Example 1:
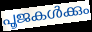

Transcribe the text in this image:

പൂജകൾക്കും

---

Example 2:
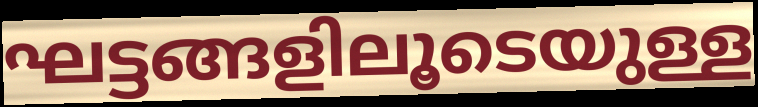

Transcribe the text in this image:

ഘട്ടങ്ങളിലൂടെയുള്ള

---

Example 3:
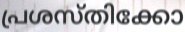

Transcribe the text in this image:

പ്രശസ്തിക്കോ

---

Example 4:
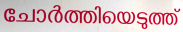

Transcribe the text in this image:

ചോർത്തിയെടുത്ത്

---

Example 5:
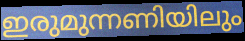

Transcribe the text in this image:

ഇരുമുന്നണിയിലും